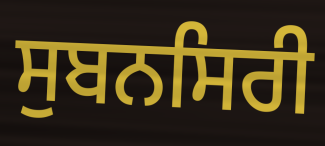
ਸੁਬਨਸਿਰੀ